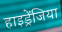
हाइड्रेंजिया